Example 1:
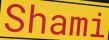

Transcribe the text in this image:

Shami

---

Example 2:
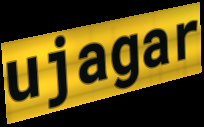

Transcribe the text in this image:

ujagar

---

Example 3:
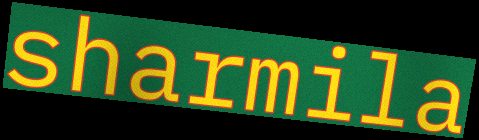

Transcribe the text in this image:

sharmila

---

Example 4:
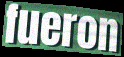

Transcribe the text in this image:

fueron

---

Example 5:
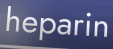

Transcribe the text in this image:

heparin